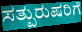
ಸತ್ಪುರುಷರಿಗೆ